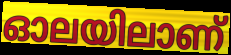
ഓലയിലാണ്